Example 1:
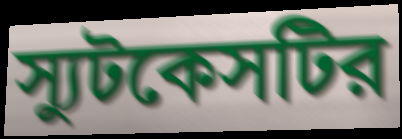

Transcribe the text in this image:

স্যুটকেসটির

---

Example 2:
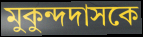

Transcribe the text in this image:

মুকুন্দদাসকে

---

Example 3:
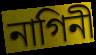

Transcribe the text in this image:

নাগিনী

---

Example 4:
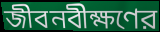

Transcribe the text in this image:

জীবনবীক্ষণের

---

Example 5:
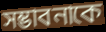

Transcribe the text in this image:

সম্ভাবনাকে